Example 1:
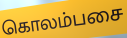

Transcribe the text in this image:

கொலம்பசை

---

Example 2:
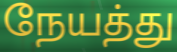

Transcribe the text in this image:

நேயத்து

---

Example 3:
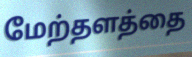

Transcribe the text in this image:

மேற்தளத்தை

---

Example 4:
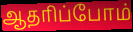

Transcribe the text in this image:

ஆதரிப்போம்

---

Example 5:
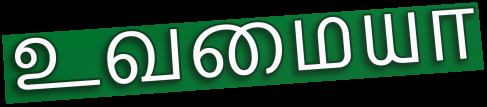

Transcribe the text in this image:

உவமையா